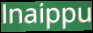
Inaippu